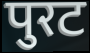
पुरट